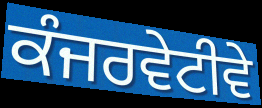
ਕੰਜਰਵੇਟੀਵੇ